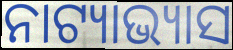
ନାଟ୍ୟାଭ୍ୟାସ